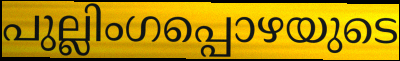
പുല്ലിംഗപ്പൊഴയുടെ